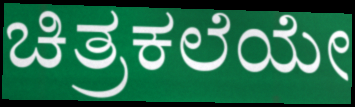
ಚಿತ್ರಕಲೆಯೇ